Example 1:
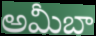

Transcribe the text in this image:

అమీబా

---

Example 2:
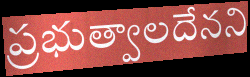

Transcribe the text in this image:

ప్రభుత్వాలదేనని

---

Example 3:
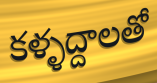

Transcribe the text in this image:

కళ్ళద్దాలతో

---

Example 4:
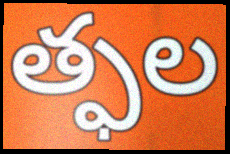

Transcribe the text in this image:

త్ఫల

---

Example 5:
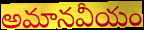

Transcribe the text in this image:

అమానవీయం